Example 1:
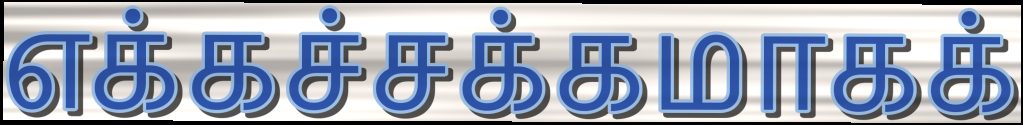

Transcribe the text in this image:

எக்கச்சக்கமாகக்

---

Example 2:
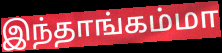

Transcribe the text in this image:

இந்தாங்கம்மா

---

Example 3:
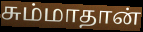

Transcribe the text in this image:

சும்மாதான்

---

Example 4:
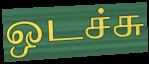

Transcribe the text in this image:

ஒடச்சு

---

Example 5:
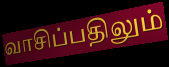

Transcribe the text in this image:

வாசிப்பதிலும்